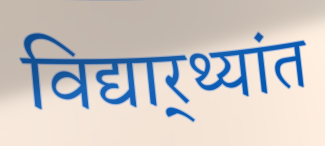
विद्यार्थ्यांत